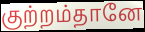
குற்றம்தானே